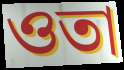
ওতা